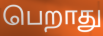
பெறாது